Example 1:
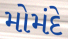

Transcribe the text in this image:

મોમંદે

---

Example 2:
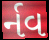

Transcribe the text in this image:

ર્નવ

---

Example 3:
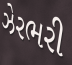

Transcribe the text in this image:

ઝેરભરી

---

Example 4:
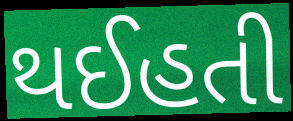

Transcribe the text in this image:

થઈહતી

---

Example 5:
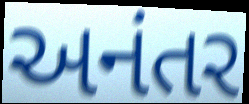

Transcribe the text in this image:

અનંતર